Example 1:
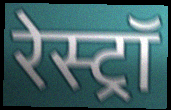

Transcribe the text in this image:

रेस्ट्रॉ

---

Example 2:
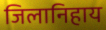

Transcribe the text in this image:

जिलानिहाय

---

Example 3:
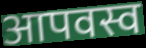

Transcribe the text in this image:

आपवस्व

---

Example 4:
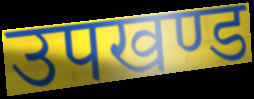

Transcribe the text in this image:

उपखण्ड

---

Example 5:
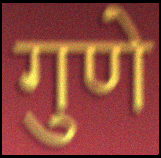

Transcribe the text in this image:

गुणे